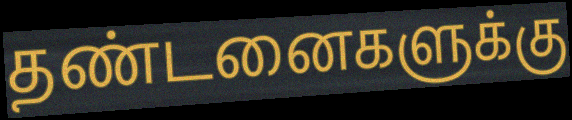
தண்டனைகளுக்கு